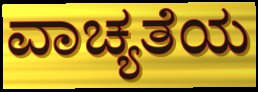
ವಾಚ್ಯತೆಯ